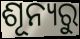
ଶୂନ୍ୟରୁ